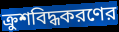
ক্রুশবিদ্ধকরণের